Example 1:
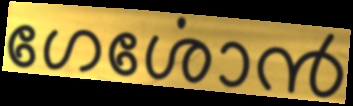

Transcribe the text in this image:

ഗേൎശോൻ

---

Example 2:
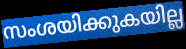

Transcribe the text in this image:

സംശയിക്കുകയില്ല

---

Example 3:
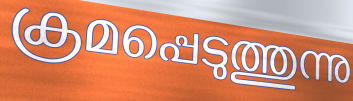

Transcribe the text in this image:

ക്രമപ്പെടുത്തുന്നു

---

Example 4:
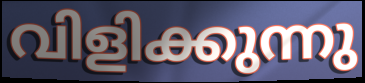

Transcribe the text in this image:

വിളിക്കുന്നു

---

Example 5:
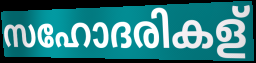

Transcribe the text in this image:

സഹോദരികള്